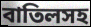
বাতিলসহ